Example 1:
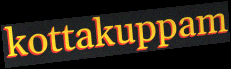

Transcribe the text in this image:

kottakuppam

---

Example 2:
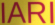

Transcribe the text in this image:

IARI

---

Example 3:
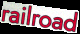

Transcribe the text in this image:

railroad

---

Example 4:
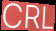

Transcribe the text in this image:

CRL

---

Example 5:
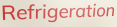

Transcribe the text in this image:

Refrigeration